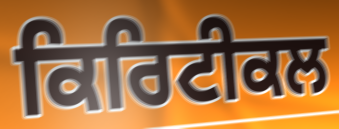
ਕਿਰਿਟੀਕਲ